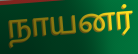
நாயனர்